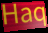
Haq